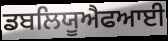
ਡਬਲਿਯੂਐਫਆਈ